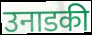
उनाडकी